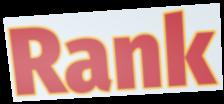
Rank